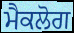
ਮੈਕਲੋਗ